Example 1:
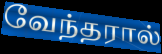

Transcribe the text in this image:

வேந்தரால்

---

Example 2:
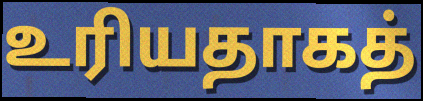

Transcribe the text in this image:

உரியதாகத்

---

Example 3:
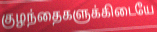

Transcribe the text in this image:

குழந்தைகளுக்கிடையே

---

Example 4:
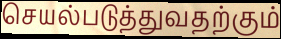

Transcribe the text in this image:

செயல்படுத்துவதற்கும்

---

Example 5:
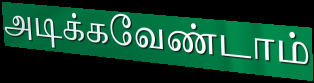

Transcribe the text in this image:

அடிக்கவேண்டாம்